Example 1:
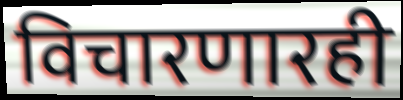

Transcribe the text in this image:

विचारणारही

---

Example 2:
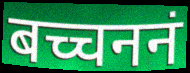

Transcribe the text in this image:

बच्चननं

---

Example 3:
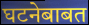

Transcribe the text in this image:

घटनेबाबत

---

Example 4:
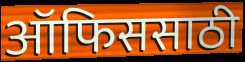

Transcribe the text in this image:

ऑफिससाठी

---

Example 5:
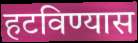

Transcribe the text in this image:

हटविण्यास